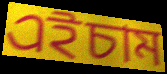
এইচাম